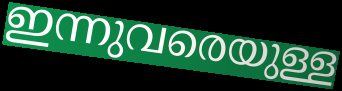
ഇന്നുവരെയുള്ള